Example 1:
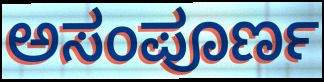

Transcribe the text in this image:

ಅಸಂಪೂರ್ಣ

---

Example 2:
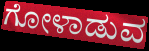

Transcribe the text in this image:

ಗೋಳಾಡುವ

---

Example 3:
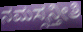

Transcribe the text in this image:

ನಮಸ್ಸನ್ತೀತಿ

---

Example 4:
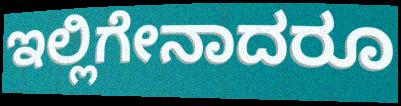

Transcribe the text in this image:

ಇಲ್ಲಿಗೇನಾದರೂ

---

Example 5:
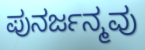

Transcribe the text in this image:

ಪುನರ್ಜನ್ಮವು